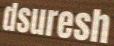
dsuresh